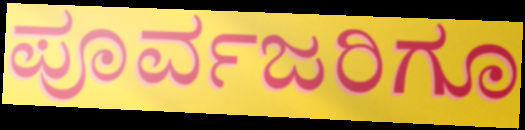
ಪೂರ್ವಜರಿಗೂ